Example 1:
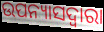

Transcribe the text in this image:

ଉପନ୍ୟାସଦ୍ୱାରା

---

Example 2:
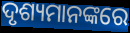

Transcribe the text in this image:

ଦୃଶ୍ୟମାନଙ୍କରେ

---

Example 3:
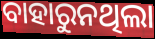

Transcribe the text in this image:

ବାହାରୁନଥିଲା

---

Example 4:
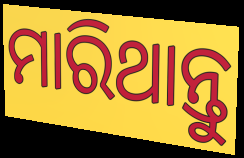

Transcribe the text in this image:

ମାରିଥାନ୍ତୁ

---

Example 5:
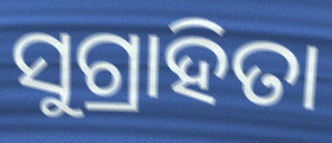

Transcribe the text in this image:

ସୁଗ୍ରାହିତା